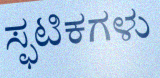
ಸ್ಫಟಿಕಗಳು